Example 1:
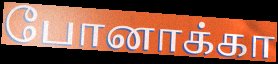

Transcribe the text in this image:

போனாக்கா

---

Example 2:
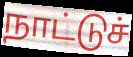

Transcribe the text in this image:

நாட்டுச்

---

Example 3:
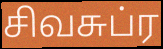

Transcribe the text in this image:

சிவசுப்ர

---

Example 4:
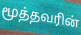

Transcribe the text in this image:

மூத்தவரின்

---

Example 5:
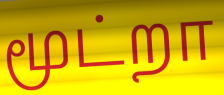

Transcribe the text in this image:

மூட்றா